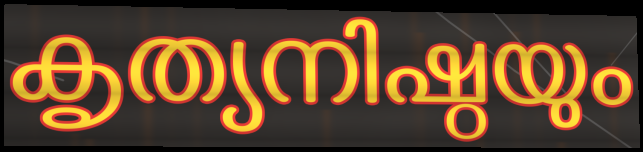
കൃത്യനിഷ്ഠയും